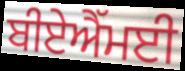
ਬੀਏਐੱਮਈ